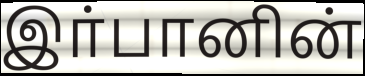
இர்பானின்